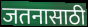
जतनासाठी